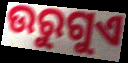
ଉରୁଗୁଏ